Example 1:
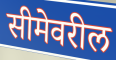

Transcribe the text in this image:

सीमेवरील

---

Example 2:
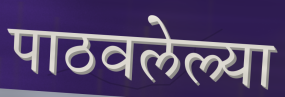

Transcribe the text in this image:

पाठवलेल्या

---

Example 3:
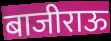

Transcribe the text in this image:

बाजीराऊ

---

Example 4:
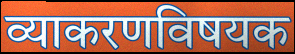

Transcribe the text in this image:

व्याकरणविषयक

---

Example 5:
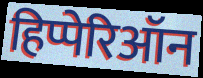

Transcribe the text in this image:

हिप्पेरिऑन